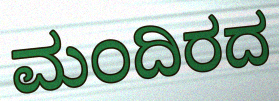
ಮಂದಿರದ